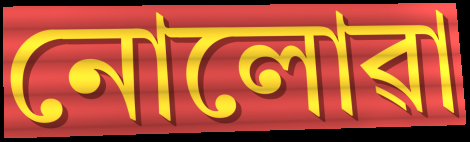
নোলোৱা